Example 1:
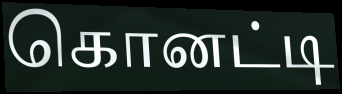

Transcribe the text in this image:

கொனட்டி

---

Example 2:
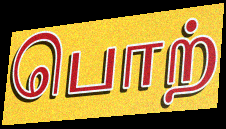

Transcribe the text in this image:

பொற்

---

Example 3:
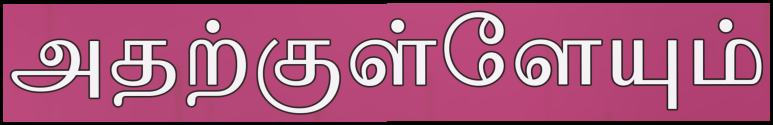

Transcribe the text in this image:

அதற்குள்ளேயும்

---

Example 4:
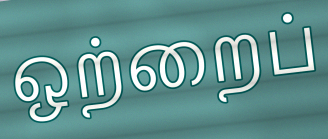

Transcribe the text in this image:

ஒற்றைப்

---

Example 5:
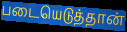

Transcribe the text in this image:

படையெடுத்தான்